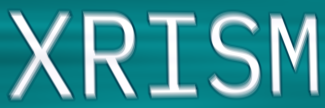
XRISM